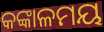
କଙ୍କାଳମୟ